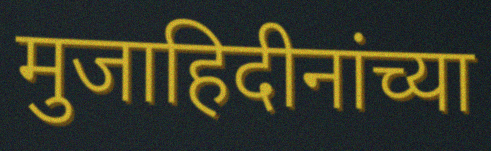
मुजाहिदीनांच्या